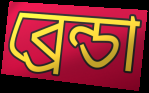
ব্রেন্ডা